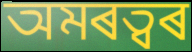
অমৰত্বৰ